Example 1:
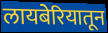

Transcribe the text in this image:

लायबेरियातून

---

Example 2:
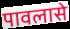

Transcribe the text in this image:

पावलासे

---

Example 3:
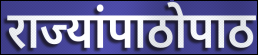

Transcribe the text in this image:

राज्यांपाठोपाठ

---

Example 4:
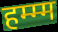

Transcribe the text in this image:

हम्म्म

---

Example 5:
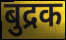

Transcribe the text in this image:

बुद्रक